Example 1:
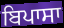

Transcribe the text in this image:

ਬਿਪਾਸਾ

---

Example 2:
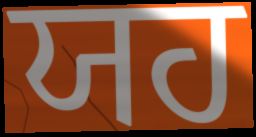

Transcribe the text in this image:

ਯਹ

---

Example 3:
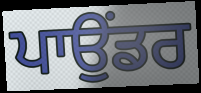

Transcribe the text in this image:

ਪਾਉਂਡਰ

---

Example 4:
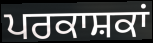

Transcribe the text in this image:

ਪਰਕਾਸ਼ਕਾਂ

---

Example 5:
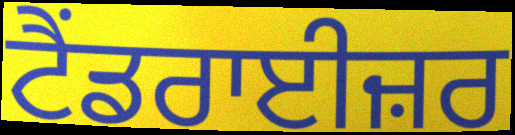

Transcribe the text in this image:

ਟੈਂਡਰਾਈਜ਼ਰ